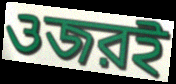
ওজরই